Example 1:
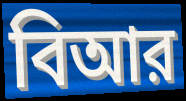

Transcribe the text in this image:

বিআর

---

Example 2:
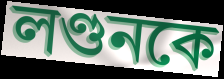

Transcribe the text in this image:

লণ্ডনকে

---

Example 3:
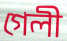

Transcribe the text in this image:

গেলী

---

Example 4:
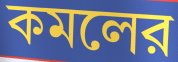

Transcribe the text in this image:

কমলের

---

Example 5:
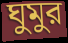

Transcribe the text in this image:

ঘুমুর